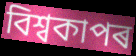
বিশ্বকাপৰ